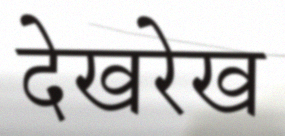
देखरेख